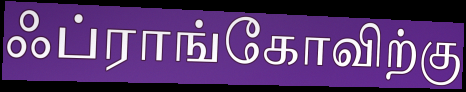
ஃப்ராங்கோவிற்கு